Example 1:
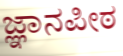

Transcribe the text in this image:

ಜ್ಞಾನಪೀಠ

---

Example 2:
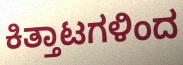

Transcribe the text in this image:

ಕಿತ್ತಾಟಗಳಿಂದ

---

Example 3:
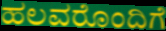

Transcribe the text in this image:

ಹಲವರೊಂದಿಗೆ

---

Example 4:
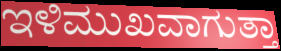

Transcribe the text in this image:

ಇಳಿಮುಖವಾಗುತ್ತಾ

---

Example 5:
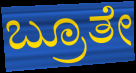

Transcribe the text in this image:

ಬ್ರೂತೇ